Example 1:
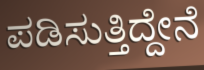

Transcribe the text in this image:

ಪಡಿಸುತ್ತಿದ್ದೇನೆ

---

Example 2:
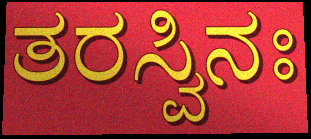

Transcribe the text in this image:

ತರಸ್ವಿನಃ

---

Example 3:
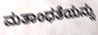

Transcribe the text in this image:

ಮತಾಂಧತೆಯನ್ನು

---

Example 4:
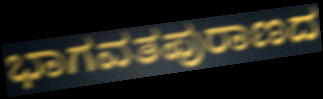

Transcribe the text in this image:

ಭಾಗವತಪುರಾಣದ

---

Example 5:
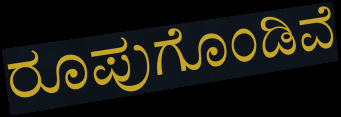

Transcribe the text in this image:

ರೂಪುಗೊಂಡಿವೆ